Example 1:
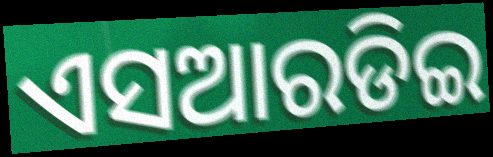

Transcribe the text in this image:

ଏସଆରଡିଇ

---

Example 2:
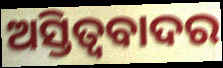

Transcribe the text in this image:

ଅସ୍ତିତ୍ବବାଦର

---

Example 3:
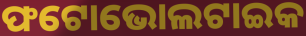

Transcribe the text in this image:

ଫଟୋଭୋଲଟାଇକ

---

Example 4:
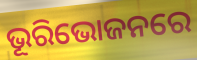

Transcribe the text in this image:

ଭୂରିଭୋଜନରେ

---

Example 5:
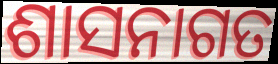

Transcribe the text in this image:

ଶାସନାଗତ